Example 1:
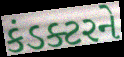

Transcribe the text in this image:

કંડક્ટરને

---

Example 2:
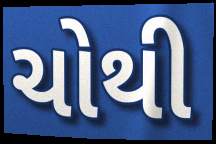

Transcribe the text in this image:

ચોથી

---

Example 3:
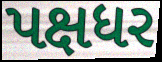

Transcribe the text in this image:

પક્ષધર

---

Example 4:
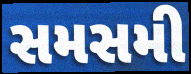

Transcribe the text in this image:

સમસમી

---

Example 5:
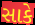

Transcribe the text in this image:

સાકે